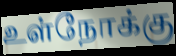
உள்நோக்கு